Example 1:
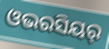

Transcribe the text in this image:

ଓଭରସିୟର୍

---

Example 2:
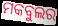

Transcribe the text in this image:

ମକବୁଲର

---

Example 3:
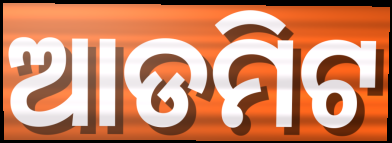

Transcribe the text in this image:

ଆଡମିଟ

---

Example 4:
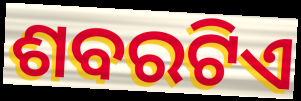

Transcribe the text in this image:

ଶବରଟିଏ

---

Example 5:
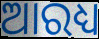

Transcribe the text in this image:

ଆରଧ୍ୟ